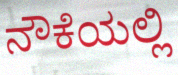
ನೌಕೆಯಲ್ಲಿ